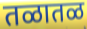
तळातळ